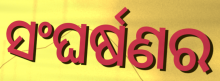
ସଂଘର୍ଷଣର